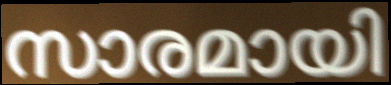
സാരമായി